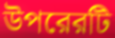
উপরেরটি